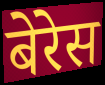
बेरेस